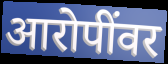
आरोपींवर